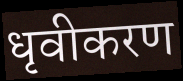
धृवीकरण